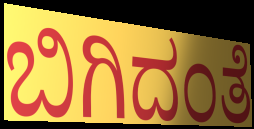
ಬಿಗಿದಂತೆ